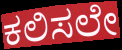
ಕಲಿಸಲೇ